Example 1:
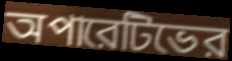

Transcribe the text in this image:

অপারেটিভের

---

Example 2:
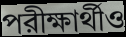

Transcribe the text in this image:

পরীক্ষার্থীও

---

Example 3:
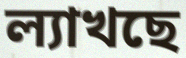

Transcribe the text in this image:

ল্যাখছে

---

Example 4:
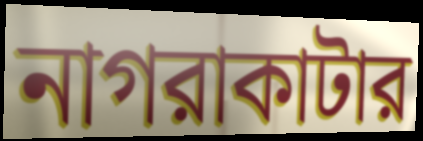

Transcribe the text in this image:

নাগরাকাটার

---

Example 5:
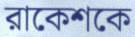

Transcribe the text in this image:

রাকেশকে